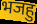
भजहु